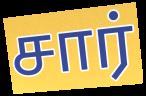
சார்